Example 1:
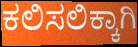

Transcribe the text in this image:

ಕಲಿಸಲಿಕ್ಕಾಗಿ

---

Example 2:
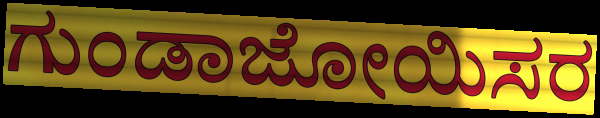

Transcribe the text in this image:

ಗುಂಡಾಜೋಯಿಸರ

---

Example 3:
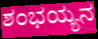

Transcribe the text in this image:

ಶಂಭಯ್ಯನ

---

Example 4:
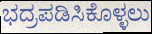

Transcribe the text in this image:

ಭದ್ರಪಡಿಸಿಕೊಳ್ಳಲು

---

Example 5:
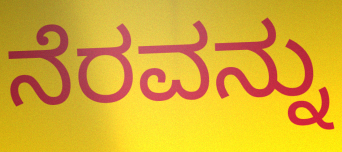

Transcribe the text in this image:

ನೆರವನ್ನು